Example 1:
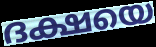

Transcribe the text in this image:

ദക്ഷയെ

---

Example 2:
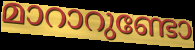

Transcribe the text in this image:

മാറാറുണ്ടോ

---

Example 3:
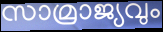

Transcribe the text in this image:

സാമ്രാജ്യവും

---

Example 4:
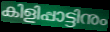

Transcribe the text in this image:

കിളിപ്പാട്ടിനും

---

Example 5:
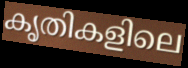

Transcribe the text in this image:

കൃതികളിലെ